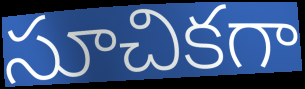
సూచికగా